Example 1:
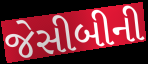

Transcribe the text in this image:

જેસીબીની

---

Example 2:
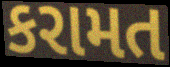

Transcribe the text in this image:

કરામત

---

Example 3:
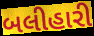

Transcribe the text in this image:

બલીહારી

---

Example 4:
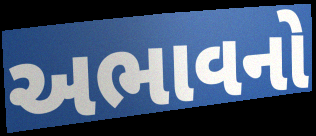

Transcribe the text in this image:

અભાવનો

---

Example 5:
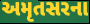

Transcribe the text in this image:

અમૃતસરના